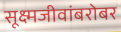
सूक्ष्मजीवांबरोबर